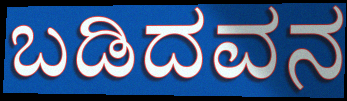
ಬಡಿದವನ